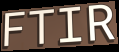
FTIR